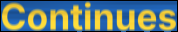
Continues